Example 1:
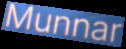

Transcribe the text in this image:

Munnar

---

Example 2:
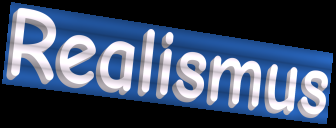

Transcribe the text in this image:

Realismus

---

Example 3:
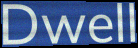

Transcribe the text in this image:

Dwell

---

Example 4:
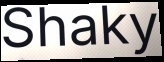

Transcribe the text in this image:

Shaky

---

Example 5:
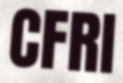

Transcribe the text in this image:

CFRI